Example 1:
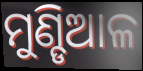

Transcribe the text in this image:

ମୁଣ୍ଡିଆଳ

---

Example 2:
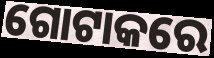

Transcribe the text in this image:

ଗୋଟାକରେ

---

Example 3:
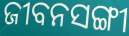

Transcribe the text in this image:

ଜୀବନସଙ୍ଗୀ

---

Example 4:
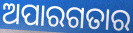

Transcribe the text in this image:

ଅପାରଗତାର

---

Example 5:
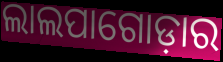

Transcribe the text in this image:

ଲାଲପାଗୋଡ଼ାର